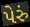
પેરું